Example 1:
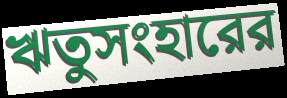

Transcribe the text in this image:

ঋতুসংহারের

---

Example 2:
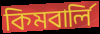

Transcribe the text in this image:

কিমবার্লি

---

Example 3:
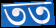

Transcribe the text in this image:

তত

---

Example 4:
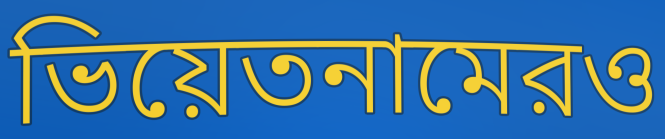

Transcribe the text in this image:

ভিয়েতনামেরও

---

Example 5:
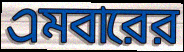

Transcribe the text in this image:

এমবারের